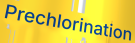
Prechlorination